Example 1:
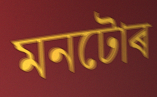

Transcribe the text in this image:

মনটোৰ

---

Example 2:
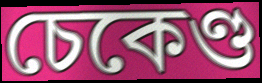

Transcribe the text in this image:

চেকেণ্ড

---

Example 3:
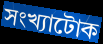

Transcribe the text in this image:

সংখ্যাটোক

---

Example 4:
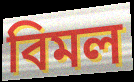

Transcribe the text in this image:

বিমল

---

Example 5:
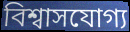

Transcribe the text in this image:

বিশ্বাসযোগ্য